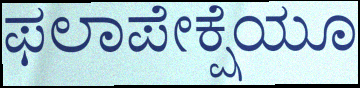
ಫಲಾಪೇಕ್ಷೆಯೂ